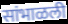
सांभाळली